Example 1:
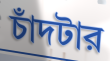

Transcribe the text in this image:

চাঁদটার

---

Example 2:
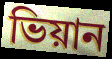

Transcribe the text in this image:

ভিয়ান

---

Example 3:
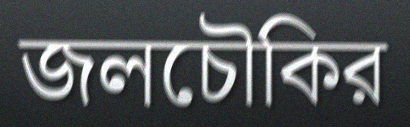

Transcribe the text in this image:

জলচৌকির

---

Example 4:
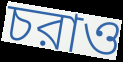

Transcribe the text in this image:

চরাও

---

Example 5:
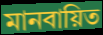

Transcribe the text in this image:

মানবায়িত